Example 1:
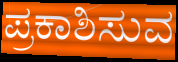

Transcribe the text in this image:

ಪ್ರಕಾಶಿಸುವ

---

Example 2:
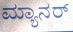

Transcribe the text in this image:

ಮ್ಯಾನರ್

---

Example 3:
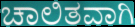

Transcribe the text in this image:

ಚಾಲಿತವಾಗಿ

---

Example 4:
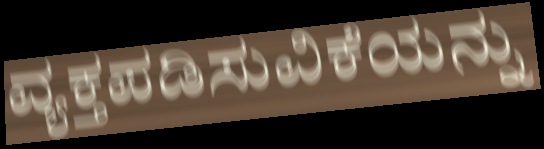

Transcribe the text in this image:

ವ್ಯಕ್ತಪಡಿಸುವಿಕೆಯನ್ನು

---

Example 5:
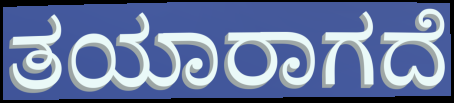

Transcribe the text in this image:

ತಯಾರಾಗದೆ